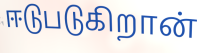
ஈடுபடுகிறான்